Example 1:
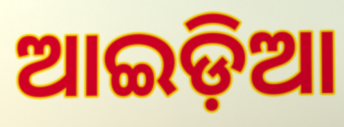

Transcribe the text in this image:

ଆଇଡ଼ିଆ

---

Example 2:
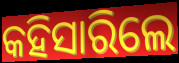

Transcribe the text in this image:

କହିସାରିଲେ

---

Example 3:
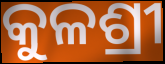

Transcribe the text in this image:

କୁଳଶ୍ରୀ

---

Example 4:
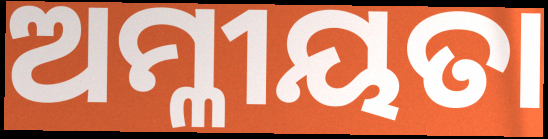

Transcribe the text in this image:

ଅମ୍ଳୀୟତା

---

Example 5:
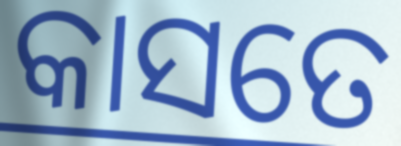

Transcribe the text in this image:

କାସତେ